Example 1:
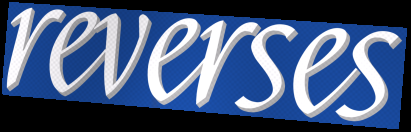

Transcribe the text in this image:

reverses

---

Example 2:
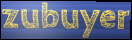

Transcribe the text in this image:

zubuyer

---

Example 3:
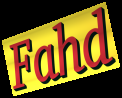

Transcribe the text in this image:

Fahd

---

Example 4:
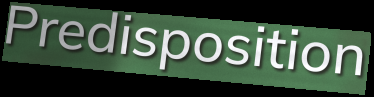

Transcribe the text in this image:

Predisposition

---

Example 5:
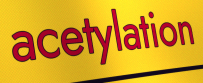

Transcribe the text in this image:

acetylation